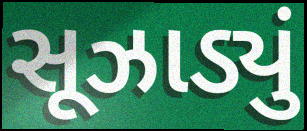
સૂઝાડ્યું